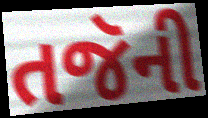
તજૅની